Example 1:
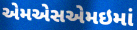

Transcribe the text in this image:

એમએસએમઇમાં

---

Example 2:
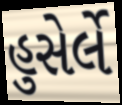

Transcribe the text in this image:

હુસેર્લે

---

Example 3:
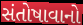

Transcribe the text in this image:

સંતોષાવાનો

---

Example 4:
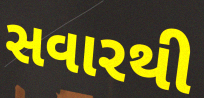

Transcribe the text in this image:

સવારથી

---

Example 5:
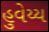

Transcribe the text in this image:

હુવેય્ય